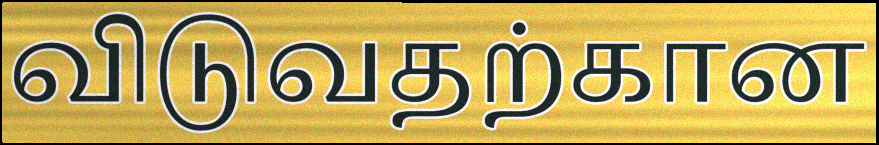
விடுவதற்கான